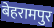
बेहरामपुर